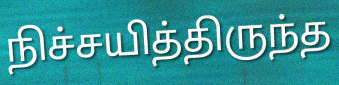
நிச்சயித்திருந்த